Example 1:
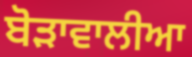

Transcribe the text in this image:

ਬੋੜਾਵਾਲੀਆ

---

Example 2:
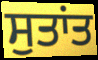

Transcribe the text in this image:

ਸੁਤਾਂਤ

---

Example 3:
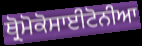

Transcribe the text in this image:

ਥ੍ਰੋਮੋਕੋਸਾਈਟੋਨੀਆ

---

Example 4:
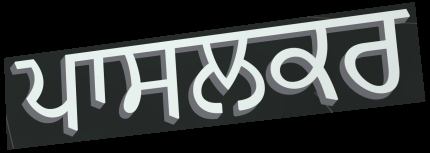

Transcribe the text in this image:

ਪਾਸਲਕਰ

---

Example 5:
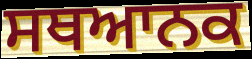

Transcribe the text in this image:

ਸਥਆਨਕ